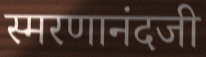
स्मरणानंदजी